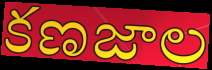
కణజాల